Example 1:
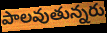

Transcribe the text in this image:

పాలవుతున్నరు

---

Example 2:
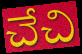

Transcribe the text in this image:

చేచి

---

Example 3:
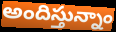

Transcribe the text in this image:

అందిస్తున్నాం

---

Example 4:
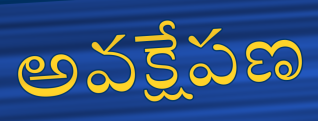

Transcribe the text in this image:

అవక్షేపణ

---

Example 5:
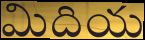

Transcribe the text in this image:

మిదియ